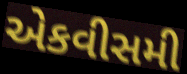
એકવીસમી